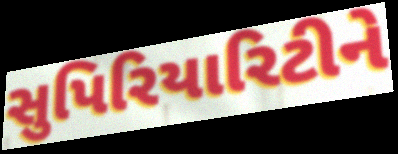
સુપિરિયારિટીને